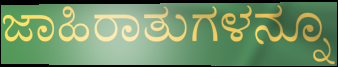
ಜಾಹಿರಾತುಗಳನ್ನೂ